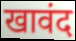
खावंद